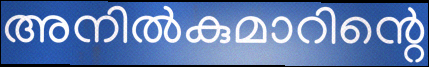
അനിൽകുമാറിന്റെ